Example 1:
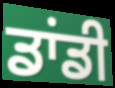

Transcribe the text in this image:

ਡਾਂਡੀ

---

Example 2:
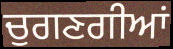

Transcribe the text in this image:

ਚੁਗਣਗੀਆਂ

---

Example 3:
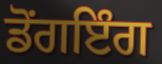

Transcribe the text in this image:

ਡੋਂਗਇੰਗ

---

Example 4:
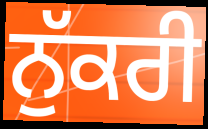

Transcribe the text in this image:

ਨੁੱਕਰੀ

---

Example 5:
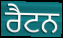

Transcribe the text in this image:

ਰੈਟਨ